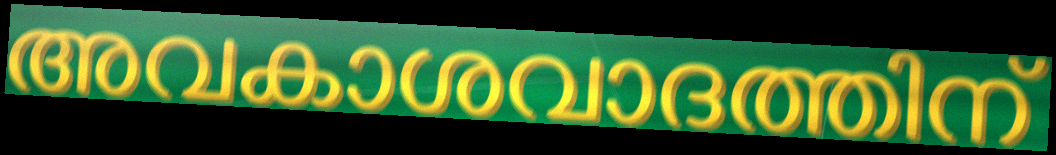
അവകാശവാദത്തിന്